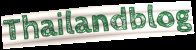
Thailandblog